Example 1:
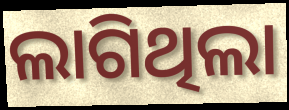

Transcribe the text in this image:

ଲାଗିଥିଲା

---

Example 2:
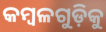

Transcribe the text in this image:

କମ୍ବଳଗୁଡ଼ିକୁ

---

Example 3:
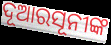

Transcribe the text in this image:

ଦୂଆରସୂନୀଙ୍କ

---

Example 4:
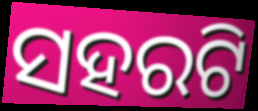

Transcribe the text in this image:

ସହରଟି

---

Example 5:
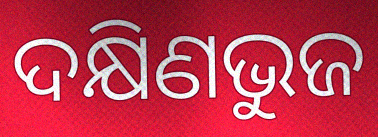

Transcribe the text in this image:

ଦକ୍ଷିଣଭୁଜ